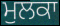
ਮੁਲਕਾ